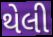
થેલી